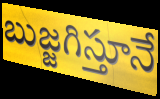
బుజ్జగిస్తూనే